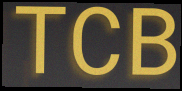
TCB